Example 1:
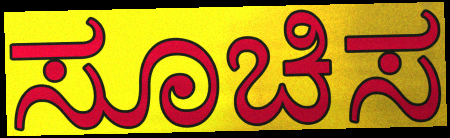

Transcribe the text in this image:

ಸೂಚಿಸ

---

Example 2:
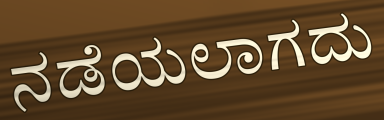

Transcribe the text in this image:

ನಡೆಯಲಾಗದು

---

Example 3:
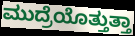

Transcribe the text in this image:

ಮುದ್ರೆಯೊತ್ತುತ್ತಾ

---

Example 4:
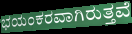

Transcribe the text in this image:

ಭಯಂಕರವಾಗಿರುತ್ತವೆ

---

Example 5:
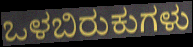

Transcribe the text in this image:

ಒಳಬಿರುಕುಗಳು